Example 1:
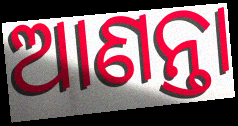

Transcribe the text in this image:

ଆଣନ୍ତା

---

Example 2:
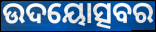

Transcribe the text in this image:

ଉଦୟୋତ୍ସବର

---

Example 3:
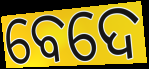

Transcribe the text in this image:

ବେଦେ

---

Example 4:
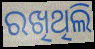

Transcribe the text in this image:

ରଖିଥିଲି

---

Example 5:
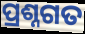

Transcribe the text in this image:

ପ୍ରଶ୍ନଗତ